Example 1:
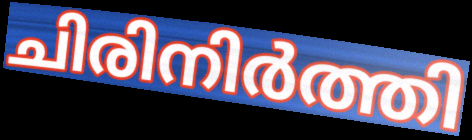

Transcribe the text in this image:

ചിരിനിർത്തി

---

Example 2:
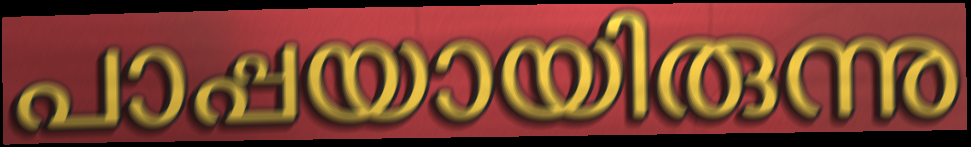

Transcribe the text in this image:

പാപ്പയായിരുന്നു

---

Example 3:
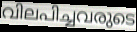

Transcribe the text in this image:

വിലപിച്ചവരുടെ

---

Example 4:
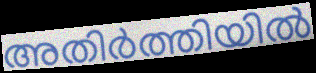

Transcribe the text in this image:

അതിർത്തിയിൽ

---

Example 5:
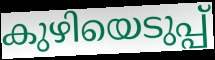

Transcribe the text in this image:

കുഴിയെടുപ്പ്